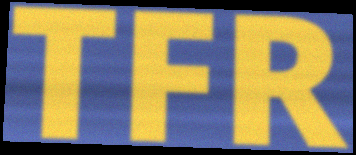
TFR